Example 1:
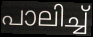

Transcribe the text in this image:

പാലിച്ച്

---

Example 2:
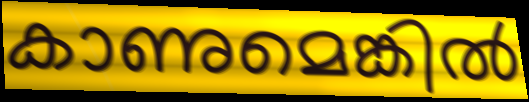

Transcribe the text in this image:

കാണുമെങ്കിൽ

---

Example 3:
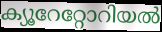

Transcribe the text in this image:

ക്യൂറേറ്റോറിയൽ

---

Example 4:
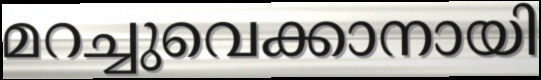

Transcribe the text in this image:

മറച്ചുവെക്കാനായി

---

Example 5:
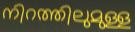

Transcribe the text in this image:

നിറത്തിലുമുള്ള